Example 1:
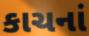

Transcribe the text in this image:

કાચનાં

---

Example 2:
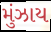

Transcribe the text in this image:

મુંઝાય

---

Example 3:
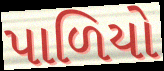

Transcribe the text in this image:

પાળિયો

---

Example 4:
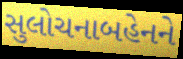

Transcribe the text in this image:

સુલોચનાબહેનને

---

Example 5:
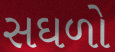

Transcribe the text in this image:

સઘળો